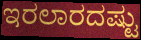
ಇರಲಾರದಷ್ಟು